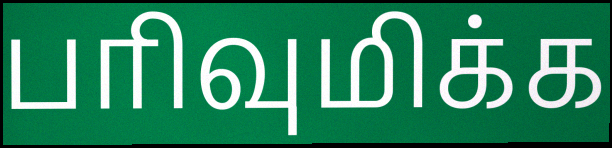
பரிவுமிக்க